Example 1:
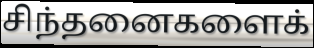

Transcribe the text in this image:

சிந்தனைகளைக்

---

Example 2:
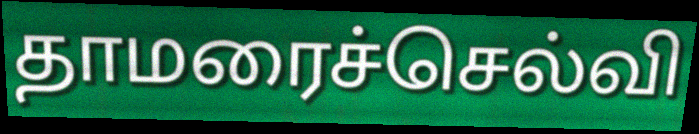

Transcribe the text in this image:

தாமரைச்செல்வி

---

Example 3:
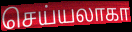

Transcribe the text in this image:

செய்யலாகா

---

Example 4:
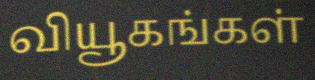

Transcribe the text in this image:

வியூகங்கள்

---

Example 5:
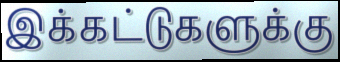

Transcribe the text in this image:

இக்கட்டுகளுக்கு